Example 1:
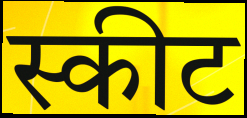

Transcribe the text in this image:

स्‍कीट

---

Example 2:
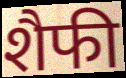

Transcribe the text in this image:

शैफी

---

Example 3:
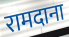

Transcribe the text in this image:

रामदाना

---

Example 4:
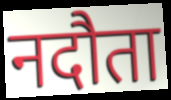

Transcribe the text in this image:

नदौता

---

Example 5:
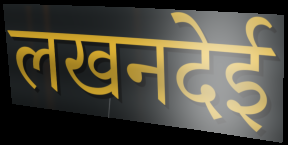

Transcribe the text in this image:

लखनदेई